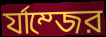
র্যাম্জের